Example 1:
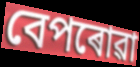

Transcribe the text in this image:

বেপৰোৱা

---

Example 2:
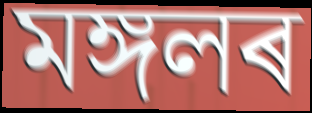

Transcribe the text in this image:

মঙ্গলৰ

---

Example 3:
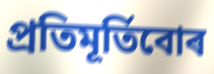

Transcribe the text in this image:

প্ৰতিমূৰ্তিবোৰ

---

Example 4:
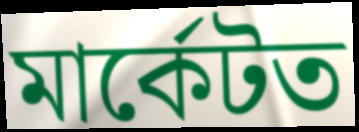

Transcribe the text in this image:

মাৰ্কেটত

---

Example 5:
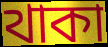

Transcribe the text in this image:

থাকা